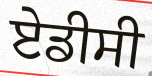
ਏਡੀਸੀ